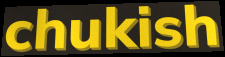
chukish